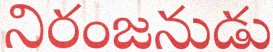
నిరంజనుడు